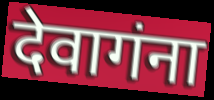
देवागंना